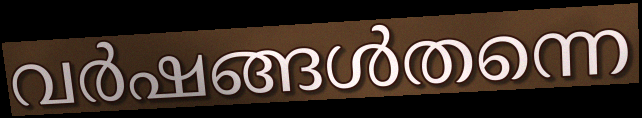
വർഷങ്ങൾതന്നെ